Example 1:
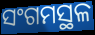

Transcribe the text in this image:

ସଂଗମସ୍ଥଳ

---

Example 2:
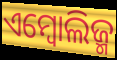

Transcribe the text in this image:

ଏମ୍ବୋଲିଜ୍ମ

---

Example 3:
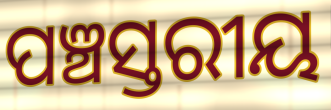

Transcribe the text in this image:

ପଞ୍ଚସ୍ତରୀୟ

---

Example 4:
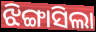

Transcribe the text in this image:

ଝିଙ୍ଗାସିଲା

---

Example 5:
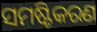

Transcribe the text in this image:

ସମଷ୍ଟିକରଣ